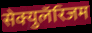
सेक्युलॅरिजम